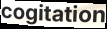
cogitation